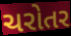
ચરોતર